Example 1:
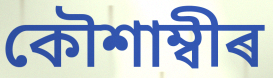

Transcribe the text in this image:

কৌশাম্বীৰ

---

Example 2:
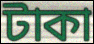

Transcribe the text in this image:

টাকা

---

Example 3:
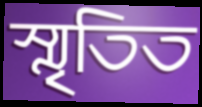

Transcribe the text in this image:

স্মৃতিত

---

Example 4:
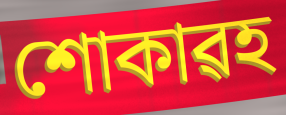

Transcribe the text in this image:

শোকাৱহ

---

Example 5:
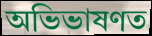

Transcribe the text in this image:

অভিভাষণত